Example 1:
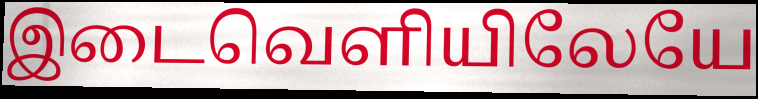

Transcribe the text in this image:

இடைவெளியிலேயே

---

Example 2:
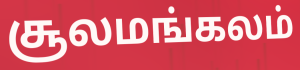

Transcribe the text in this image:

சூலமங்கலம்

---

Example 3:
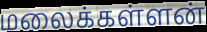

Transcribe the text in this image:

மலைக்கள்ளன்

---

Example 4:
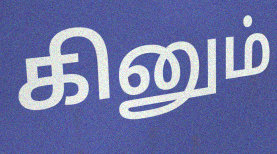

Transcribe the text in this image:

கினும்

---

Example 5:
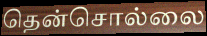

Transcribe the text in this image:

தென்சொல்லை